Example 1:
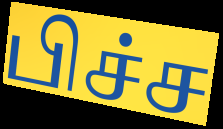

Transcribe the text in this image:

பிச்ச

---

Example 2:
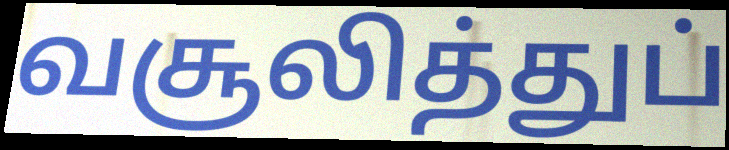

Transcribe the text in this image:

வசூலித்துப்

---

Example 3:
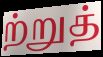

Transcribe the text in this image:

ற்றுத்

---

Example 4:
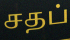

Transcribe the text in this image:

சதப்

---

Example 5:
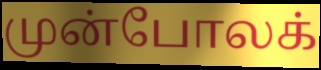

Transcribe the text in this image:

முன்போலக்